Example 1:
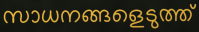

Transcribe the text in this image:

സാധനങ്ങളെടുത്ത്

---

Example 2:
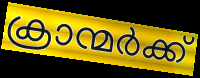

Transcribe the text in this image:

ക്രാന്മർക്ക്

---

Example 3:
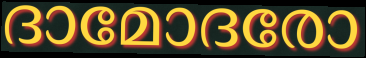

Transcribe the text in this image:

ദാമോദരോ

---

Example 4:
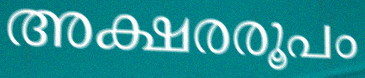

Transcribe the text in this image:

അക്ഷരരൂപം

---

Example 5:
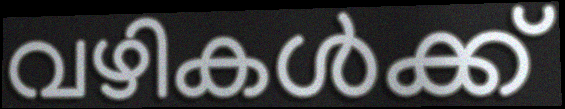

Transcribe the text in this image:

വഴികൾക്ക്